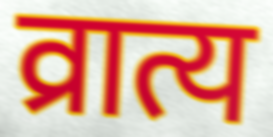
व्रात्य